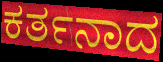
ಕರ್ತನಾದ